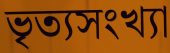
ভৃত্যসংখ্যা